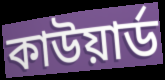
কাউয়ার্ড